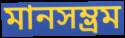
মানসম্ভ্রম